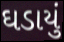
ઘડાયું